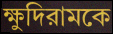
ক্ষুদিরামকে